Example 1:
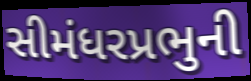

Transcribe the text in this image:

સીમંધરપ્રભુની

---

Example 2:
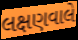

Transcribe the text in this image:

લક્ષણવાલે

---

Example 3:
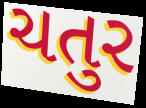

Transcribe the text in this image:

ચતુર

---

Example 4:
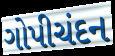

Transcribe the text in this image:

ગોપીચંદન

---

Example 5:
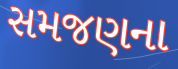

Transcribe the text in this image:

સમજણના